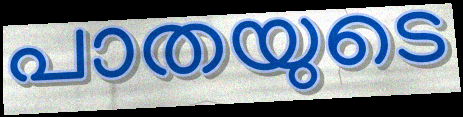
പാതയുടെ